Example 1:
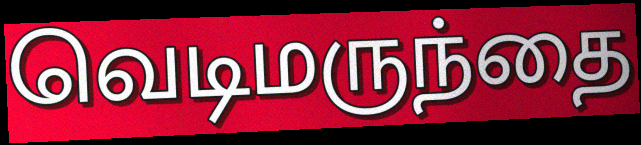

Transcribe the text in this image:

வெடிமருந்தை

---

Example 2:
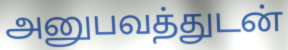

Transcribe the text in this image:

அனுபவத்துடன்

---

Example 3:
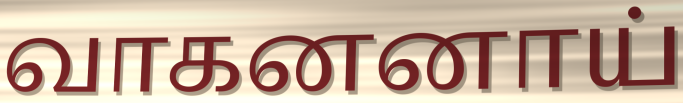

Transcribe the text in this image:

வாகனனாய்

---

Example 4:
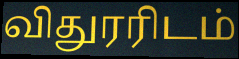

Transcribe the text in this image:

விதுரரிடம்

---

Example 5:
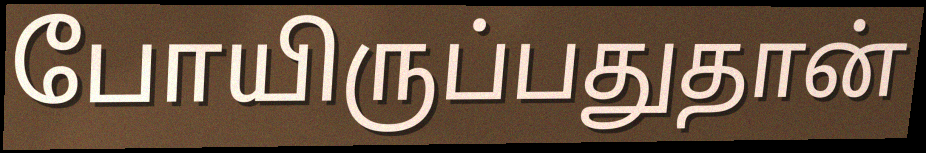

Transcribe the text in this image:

போயிருப்பதுதான்